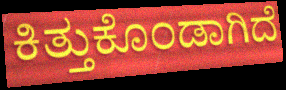
ಕಿತ್ತುಕೊಂಡಾಗಿದೆ